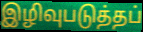
இழிவுபடுத்தப்